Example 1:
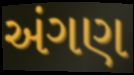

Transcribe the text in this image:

અંગણ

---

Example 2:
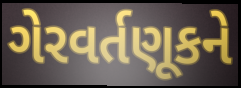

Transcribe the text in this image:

ગેરવર્તણૂકને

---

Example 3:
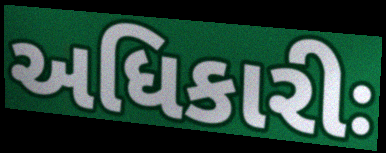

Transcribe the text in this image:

અધિકારીઃ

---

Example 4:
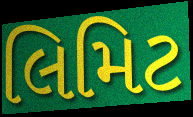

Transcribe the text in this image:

લિમિટ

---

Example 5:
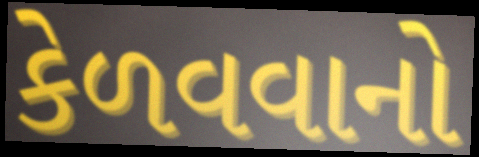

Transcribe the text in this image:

કેળવવાનો